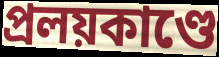
প্রলয়কাণ্ডে